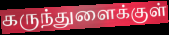
கருந்துளைக்குள்